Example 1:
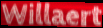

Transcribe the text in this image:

Willaert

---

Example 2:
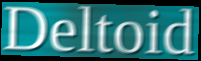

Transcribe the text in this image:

Deltoid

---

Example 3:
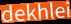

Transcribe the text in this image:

dekhlei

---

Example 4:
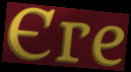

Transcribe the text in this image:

Ere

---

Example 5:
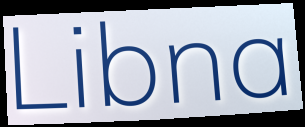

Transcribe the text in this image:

Libna